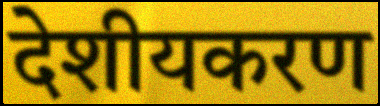
देशीयकरण